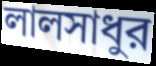
লালসাধুর